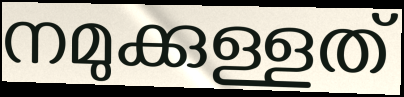
നമുക്കുള്ളത്